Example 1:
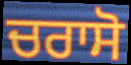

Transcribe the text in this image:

ਚਰਾਸੋ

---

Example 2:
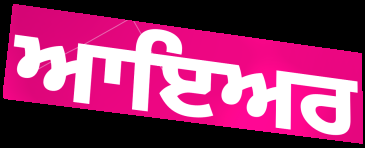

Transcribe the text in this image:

ਆਇਅਰ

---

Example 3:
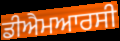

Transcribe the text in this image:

ਡੀਐਮਆਰਸੀ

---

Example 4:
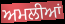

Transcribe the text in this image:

ਅਮਲੀਆਂ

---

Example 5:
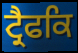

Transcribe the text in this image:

ਟ੍ਰੈਫਕਿ